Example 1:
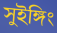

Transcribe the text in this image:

সুইঙ্গিং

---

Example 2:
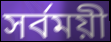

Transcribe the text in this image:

সর্বময়ী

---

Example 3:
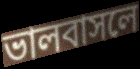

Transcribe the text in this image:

ভালবাসলে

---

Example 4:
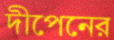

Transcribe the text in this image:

দীপেনের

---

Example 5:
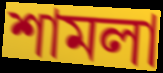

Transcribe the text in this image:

শামলা